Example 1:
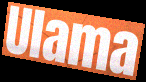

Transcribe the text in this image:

Ulama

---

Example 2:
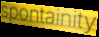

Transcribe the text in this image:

spontainity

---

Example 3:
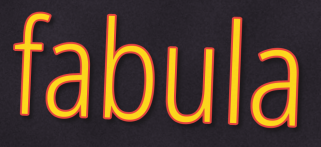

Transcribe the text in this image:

fabula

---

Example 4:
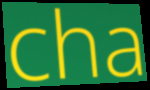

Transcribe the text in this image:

cha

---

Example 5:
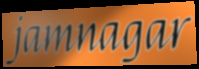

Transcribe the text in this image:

jamnagar